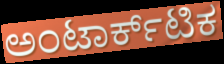
ಅಂಟಾರ್ಕ್‍ಟಿಕ